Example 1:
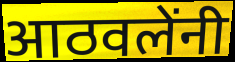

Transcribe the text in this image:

आठवलेंनी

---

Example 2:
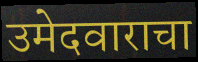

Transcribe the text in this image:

उमेदवाराचा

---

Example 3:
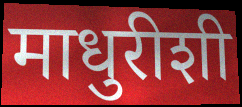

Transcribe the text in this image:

माधुरीशी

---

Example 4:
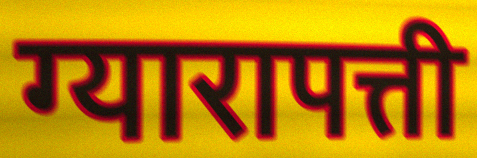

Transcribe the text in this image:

ग्यारापत्ती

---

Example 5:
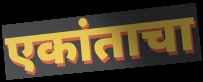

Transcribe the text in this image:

एकांताचा